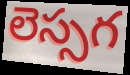
లెస్సగ